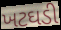
ખટઘડી